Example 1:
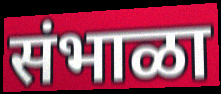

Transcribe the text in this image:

संभाळा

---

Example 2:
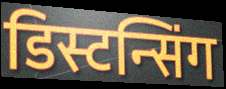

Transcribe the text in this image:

डिस्टन्सिंग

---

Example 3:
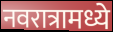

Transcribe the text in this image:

नवरात्रामध्ये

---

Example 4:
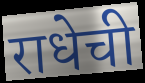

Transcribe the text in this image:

राधेची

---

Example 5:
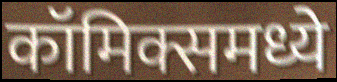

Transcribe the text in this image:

कॉमिक्समध्ये